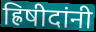
ह्रिषीदांनी